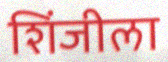
शिंजीला